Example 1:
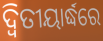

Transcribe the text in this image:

ଦ୍ୱିତୀୟାର୍ଦ୍ଧରେ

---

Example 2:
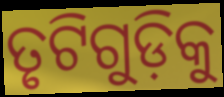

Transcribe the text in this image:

ତୃଟିଗୁଡ଼ିକୁ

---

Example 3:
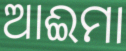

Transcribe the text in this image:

ଆଈମା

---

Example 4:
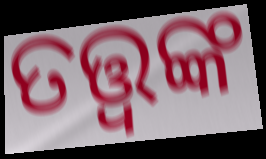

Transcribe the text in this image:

ତତ୍ତ୍ବଙ୍କ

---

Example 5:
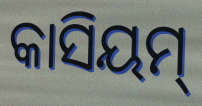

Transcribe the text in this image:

କାସିୟମ୍